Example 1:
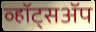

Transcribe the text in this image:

व्हॉट्सॲप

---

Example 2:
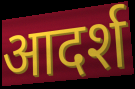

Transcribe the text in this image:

आदर्श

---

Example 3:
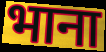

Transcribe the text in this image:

भाना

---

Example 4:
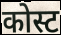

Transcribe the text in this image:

कोस्ट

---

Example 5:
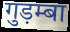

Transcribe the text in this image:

गुड़म्बा